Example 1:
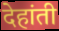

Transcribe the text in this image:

देहांती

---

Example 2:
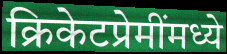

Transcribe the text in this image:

क्रिकेटप्रेमींमध्ये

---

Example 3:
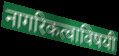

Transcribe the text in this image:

नागरिकत्वाविषयी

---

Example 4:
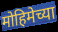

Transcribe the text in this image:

मोहिमेच्या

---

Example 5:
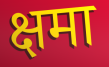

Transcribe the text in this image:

क्षमा